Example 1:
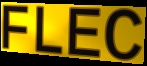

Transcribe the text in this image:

FLEC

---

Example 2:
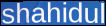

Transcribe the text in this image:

shahidul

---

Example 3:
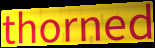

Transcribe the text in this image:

thorned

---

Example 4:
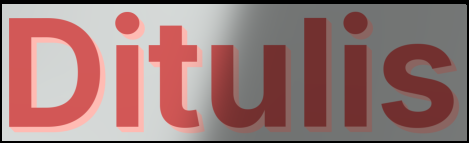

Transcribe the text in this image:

Ditulis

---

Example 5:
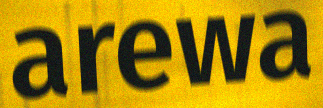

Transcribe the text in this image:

arewa